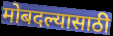
मोबदल्यासाठी